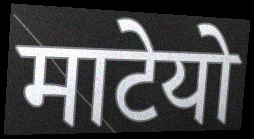
माटेयो